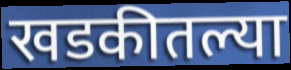
खडकीतल्या